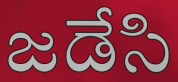
జడేసి